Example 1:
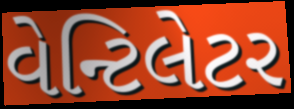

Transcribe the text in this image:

વેન્ટિલેટર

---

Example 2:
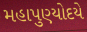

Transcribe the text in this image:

મહાપુણ્યોદયે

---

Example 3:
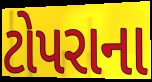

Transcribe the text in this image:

ટોપરાના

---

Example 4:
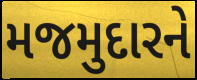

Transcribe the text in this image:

મજમુદારને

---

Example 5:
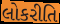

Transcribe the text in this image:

લોકરીતિ